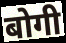
बोगी